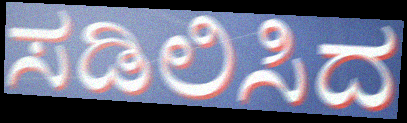
ಸಡಿಲಿಸಿದ